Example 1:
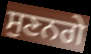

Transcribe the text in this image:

ਸੁਣਨਗੇ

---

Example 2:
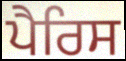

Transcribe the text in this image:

ਪੈਰਿਸ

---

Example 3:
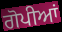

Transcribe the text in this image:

ਗੋਪੀਆਂ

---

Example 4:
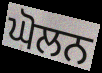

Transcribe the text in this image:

ਘੋਲਨ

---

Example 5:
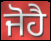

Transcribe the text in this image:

ਜੋਹੈ